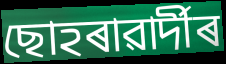
ছোহৰাৱাৰ্দীৰ